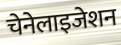
चेनेलाइजेशन